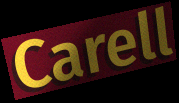
Carell